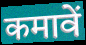
कमावें